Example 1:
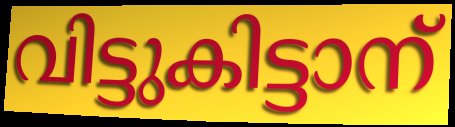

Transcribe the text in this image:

വിട്ടുകിട്ടാന്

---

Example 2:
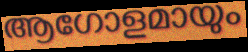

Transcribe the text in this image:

ആഗോളമായും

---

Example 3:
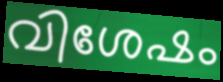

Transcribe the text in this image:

വിശേഷം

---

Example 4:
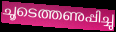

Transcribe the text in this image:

ചൂടെത്തണുപ്പിച്ചു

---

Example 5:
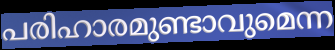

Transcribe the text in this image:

പരിഹാരമുണ്ടാവുമെന്ന